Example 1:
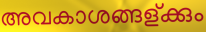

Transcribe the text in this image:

അവകാശങ്ങള്ക്കും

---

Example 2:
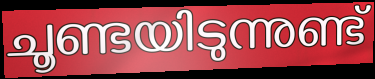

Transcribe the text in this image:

ചൂണ്ടയിടുന്നുണ്ട്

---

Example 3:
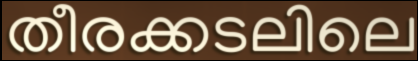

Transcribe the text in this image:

തീരക്കടലിലെ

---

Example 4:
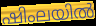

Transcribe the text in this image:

ഷിംലയിൽ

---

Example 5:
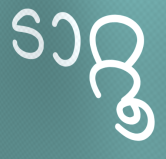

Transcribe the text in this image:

ടാറ്റൂ